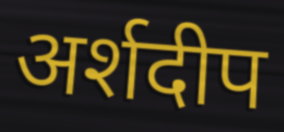
अर्शदीप